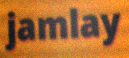
jamlay